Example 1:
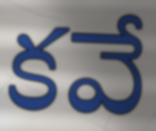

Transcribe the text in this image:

కవే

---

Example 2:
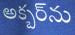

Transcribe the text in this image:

అక్బర్‌ను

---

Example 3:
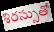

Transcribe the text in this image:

శిరస్సుతో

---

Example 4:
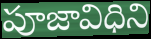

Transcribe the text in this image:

పూజావిధిని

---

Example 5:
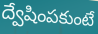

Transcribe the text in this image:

ద్వేషింపకుంటే